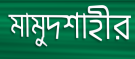
মামুদশাহীর